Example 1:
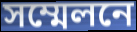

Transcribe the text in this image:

সম্মেলনে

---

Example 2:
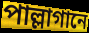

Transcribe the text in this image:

পাল্লাগানে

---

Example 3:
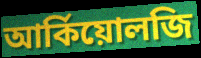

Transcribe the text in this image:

আর্কিয়োলজি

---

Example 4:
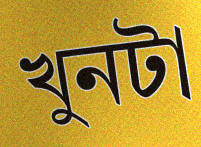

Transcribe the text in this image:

খুনটা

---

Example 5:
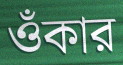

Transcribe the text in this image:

ওঁকার